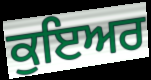
ਕੁਇਅਰ